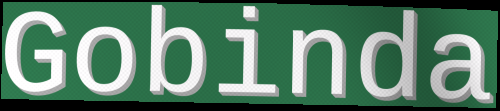
Gobinda